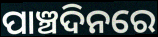
ପାଞ୍ଚଦିନରେ